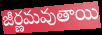
జీర్ణమవుతాయి